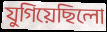
যুগিয়েছিলো